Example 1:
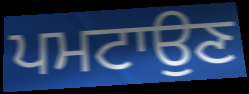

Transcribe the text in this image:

ਪਮਟਾਉਣ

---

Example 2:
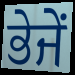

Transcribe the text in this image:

ਭੇਜੇਂ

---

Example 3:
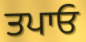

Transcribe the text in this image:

ਤਪਾਓ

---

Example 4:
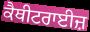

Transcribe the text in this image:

ਕੈਥੀਟਰਾਈਜ਼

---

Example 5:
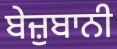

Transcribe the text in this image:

ਬੇਜ਼ੁਬਾਨੀ